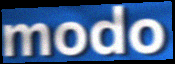
modo